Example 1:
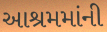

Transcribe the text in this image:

આશ્રમમાંની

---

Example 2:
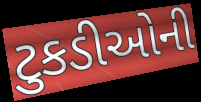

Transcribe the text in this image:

ટુકડીઓની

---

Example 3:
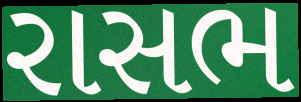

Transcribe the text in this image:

રાસભ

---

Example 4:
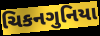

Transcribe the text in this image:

ચિકનગુનિયા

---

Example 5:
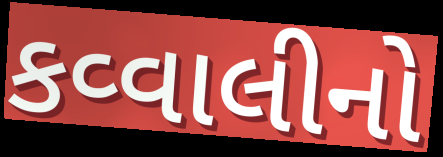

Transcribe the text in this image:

કવ્વાલીનો